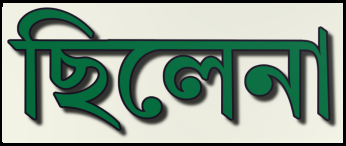
ছিলেনা